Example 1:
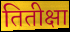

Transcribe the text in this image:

तितीक्षा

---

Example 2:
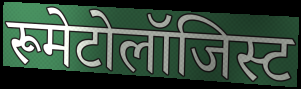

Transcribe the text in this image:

रूमेटोलॉजिस्ट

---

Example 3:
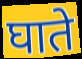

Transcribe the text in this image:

घाते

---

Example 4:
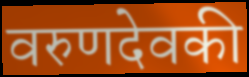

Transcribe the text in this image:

वरुणदेवकी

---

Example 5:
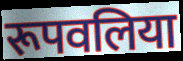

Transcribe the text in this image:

रूपवलिया